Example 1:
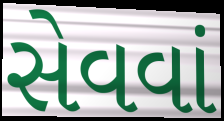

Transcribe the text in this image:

સેવવાં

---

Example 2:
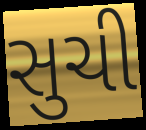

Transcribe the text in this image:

સુચી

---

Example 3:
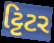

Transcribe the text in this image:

ટ્ટિટર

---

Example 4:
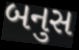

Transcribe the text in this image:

બનુસ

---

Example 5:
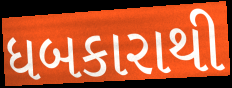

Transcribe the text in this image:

ધબકારાથી